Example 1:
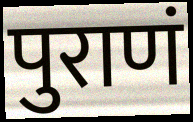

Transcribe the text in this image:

पुराणं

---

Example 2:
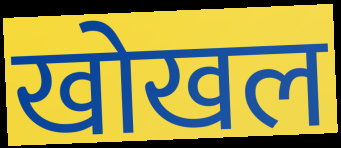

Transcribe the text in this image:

खोखल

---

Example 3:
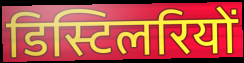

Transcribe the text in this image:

डिस्टिलरियों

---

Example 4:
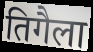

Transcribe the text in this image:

तिगैला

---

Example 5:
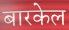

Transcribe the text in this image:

बारकेल